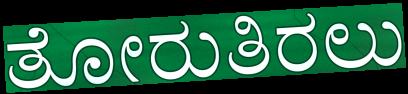
ತೋರುತಿರಲು